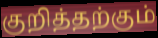
குறித்தற்கும்